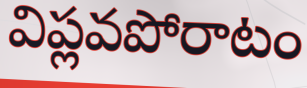
విప్లవపోరాటం